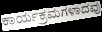
ಕಾರ್ಯಕ್ರಮಗಳಾದವು